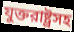
যুক্তরাষ্ট্রসহ